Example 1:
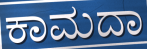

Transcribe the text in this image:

ಕಾಮದಾ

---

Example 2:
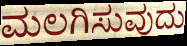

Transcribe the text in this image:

ಮಲಗಿಸುವುದು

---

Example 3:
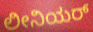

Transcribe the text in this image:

ಲೀನಿಯರ್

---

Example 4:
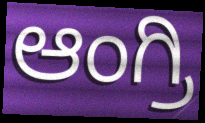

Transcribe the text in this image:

ಆಂಗ್ರಿ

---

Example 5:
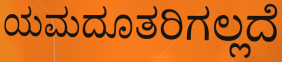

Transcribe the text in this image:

ಯಮದೂತರಿಗಲ್ಲದೆ